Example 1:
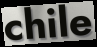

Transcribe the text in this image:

chile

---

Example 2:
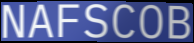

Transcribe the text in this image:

NAFSCOB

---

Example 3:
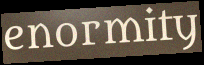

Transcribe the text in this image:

enormity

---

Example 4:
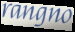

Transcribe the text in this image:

rangno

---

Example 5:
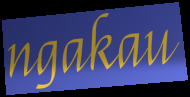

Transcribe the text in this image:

ngakau